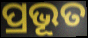
ପ୍ରଭୂତ